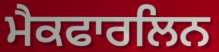
ਮੈਕਫਾਰਲਿਨ